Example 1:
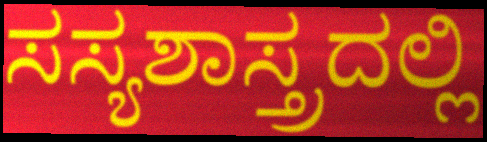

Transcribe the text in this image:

ಸಸ್ಯಶಾಸ್ತ್ರದಲ್ಲಿ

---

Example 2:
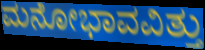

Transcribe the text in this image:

ಮನೋಭಾವವಿತ್ತು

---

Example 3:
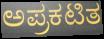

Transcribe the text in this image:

ಅಪ್ರಕಟಿತ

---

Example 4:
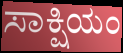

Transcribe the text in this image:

ಸಾಕ್ಷಿಯಂ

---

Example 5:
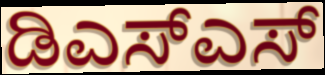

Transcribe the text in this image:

ಡಿಎಸ್ಎಸ್